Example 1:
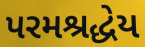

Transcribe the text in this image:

પરમશ્રદ્ધેય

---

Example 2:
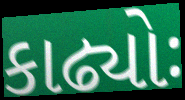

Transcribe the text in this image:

કાઢ્યોઃ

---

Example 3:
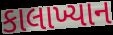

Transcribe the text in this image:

કાલાખ્યાન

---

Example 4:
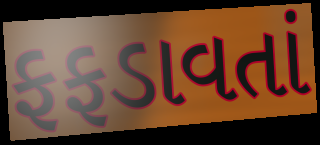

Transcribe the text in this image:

ફફડાવતાં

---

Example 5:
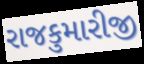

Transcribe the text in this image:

રાજકુમારીજી